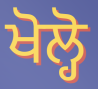
ਖੋਲ੍ਹੋ